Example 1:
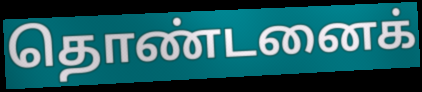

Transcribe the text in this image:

தொண்டனைக்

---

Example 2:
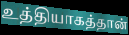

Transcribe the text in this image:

உத்தியாகத்தான்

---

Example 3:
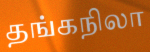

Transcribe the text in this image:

தங்கநிலா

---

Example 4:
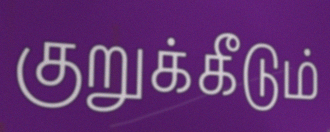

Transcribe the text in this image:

குறுக்கீடும்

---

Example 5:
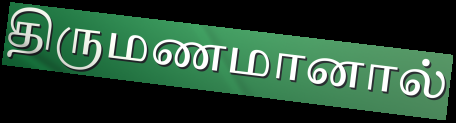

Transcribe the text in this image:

திருமணமானால்